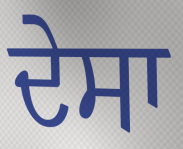
ਦੇਸਾ